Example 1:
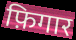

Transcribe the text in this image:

फ़िगार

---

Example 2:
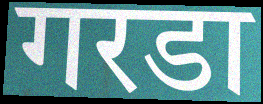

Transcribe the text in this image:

गरडा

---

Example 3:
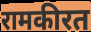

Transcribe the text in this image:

रामकीरत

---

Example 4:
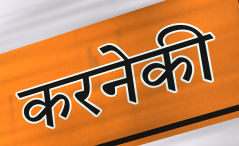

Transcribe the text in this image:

करनेकी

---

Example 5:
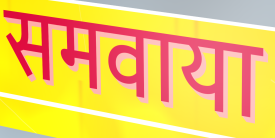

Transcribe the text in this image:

समवाया